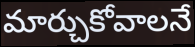
మార్చుకోవాలనే